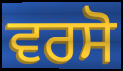
ਵਰਸੋ